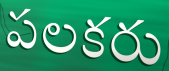
పలకరు